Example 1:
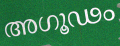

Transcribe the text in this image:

അഗൂഢം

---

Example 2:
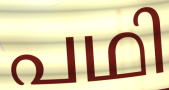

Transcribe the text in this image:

പഥി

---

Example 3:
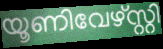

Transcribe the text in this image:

യൂണിവേഴ്സ്റ്റി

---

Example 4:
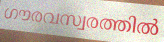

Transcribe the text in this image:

ഗൗരവസ്വരത്തിൽ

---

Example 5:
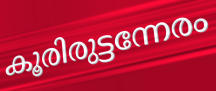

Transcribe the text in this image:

കൂരിരുട്ടന്നേരം